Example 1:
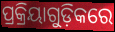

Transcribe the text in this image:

ପ୍ରକ୍ରିୟାଗୁଡ଼ିକରେ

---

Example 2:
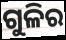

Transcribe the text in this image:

ଗୁଳିର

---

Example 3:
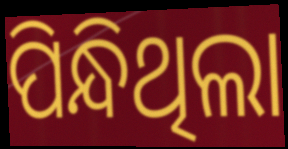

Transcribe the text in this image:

ପିନ୍ଧିଥିଲା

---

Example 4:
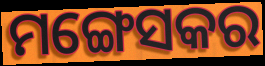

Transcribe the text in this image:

ମଙ୍ଗେସକର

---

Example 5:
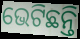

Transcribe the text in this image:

ଭେଟିଛନ୍ତି